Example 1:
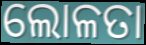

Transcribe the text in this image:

ଲୋଳତା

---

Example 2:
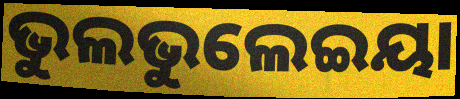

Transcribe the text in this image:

ଭୁଲଭୁଲେଇୟା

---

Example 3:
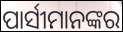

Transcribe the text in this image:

ପାର୍ସୀମାନଙ୍କର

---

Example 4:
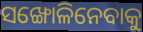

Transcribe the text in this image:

ସଙ୍ଖୋଳିନେବାକୁ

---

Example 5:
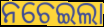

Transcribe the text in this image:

ନଚେଇଲା